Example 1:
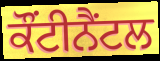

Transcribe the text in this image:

ਕੌਂਟੀਨੈਂਟਲ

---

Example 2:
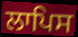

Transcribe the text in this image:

ਲਾਪਿਸ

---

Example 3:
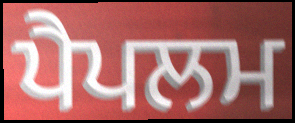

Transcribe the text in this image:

ਪੈਪਲਮ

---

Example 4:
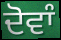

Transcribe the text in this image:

ਦੋਵਾੰ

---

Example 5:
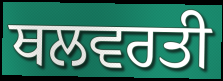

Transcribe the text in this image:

ਥਲਵਰਤੀ